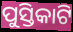
ପୁସ୍ତିକାଟି